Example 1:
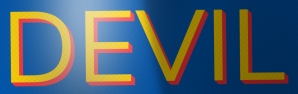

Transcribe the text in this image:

DEVIL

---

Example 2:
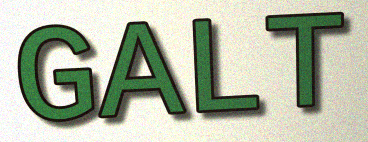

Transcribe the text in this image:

GALT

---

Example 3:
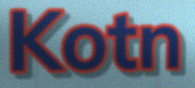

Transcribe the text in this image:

Kotn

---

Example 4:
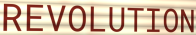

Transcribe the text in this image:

REVOLUTION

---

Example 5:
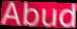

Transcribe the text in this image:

Abud